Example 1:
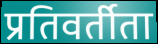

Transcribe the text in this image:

प्रतिवर्तीता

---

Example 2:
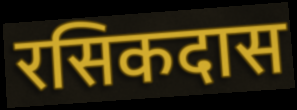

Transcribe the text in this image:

रसिकदास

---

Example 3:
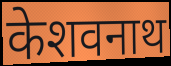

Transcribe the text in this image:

केशवनाथ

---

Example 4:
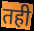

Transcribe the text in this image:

तही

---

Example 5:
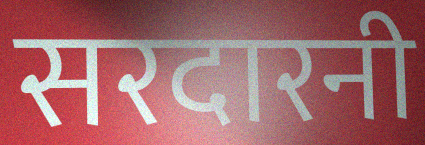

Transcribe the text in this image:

सरदारनी